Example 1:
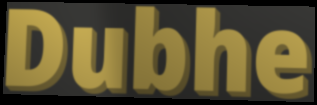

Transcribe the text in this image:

Dubhe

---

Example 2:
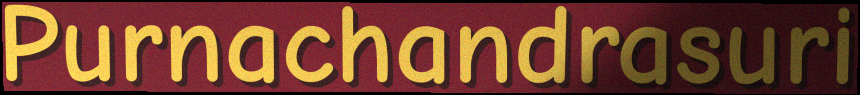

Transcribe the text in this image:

Purnachandrasuri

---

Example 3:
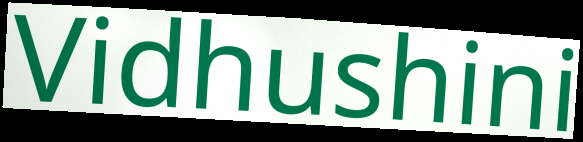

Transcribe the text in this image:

Vidhushini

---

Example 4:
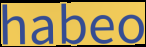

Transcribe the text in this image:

habeo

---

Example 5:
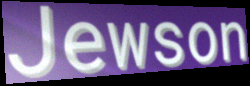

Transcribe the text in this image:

Jewson